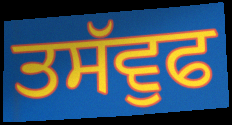
ਤਸੱਵੁਫ